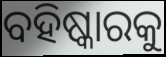
ବହିଷ୍କାରକୁ